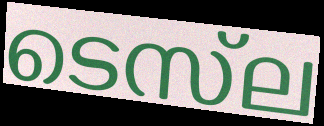
ടെസ്‌ല